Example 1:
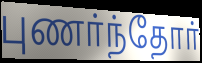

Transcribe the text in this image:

புணர்ந்தோர்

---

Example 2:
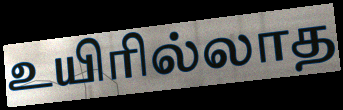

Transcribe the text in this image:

உயிரில்லாத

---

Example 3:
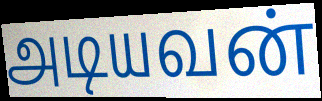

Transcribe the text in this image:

அடியவன்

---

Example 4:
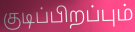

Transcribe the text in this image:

குடிப்பிறப்பும்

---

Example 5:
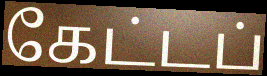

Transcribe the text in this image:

கேட்டப்